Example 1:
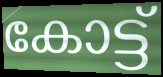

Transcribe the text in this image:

കോട്ട്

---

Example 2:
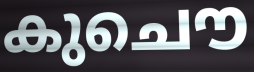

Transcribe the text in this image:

കുചൌ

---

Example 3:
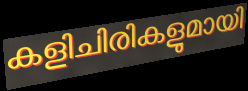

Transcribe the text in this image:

കളിചിരികളുമായി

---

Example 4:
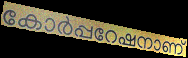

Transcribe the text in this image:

കോർപ്പറേഷനാണ്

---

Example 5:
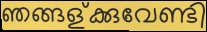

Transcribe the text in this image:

ഞങ്ങള്ക്കുവേണ്ടി